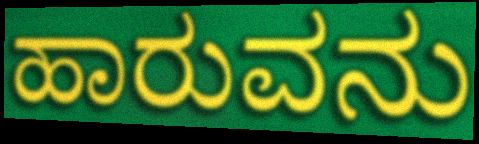
ಹಾರುವನು